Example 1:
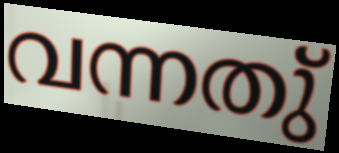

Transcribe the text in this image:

വന്നതു്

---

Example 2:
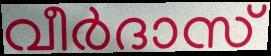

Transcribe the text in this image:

വീർദാസ്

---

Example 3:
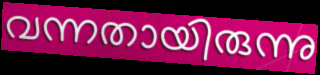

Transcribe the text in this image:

വന്നതായിരുന്നു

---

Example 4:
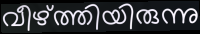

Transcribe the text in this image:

വീഴ്ത്തിയിരുന്നു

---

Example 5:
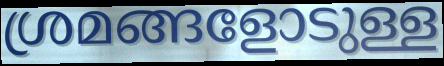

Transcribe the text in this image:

ശ്രമങ്ങളോടുള്ള